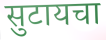
सुटायचा